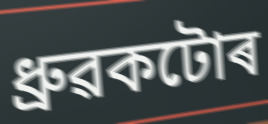
ধ্ৰুৱকটোৰ